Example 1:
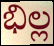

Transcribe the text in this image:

భిల్ల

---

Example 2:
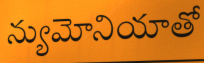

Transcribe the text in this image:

న్యుమోనియాతో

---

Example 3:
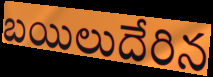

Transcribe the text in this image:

బయిలుదేరిన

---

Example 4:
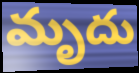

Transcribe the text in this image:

మృదు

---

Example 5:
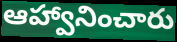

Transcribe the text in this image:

ఆహ్వానించారు